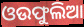
ଓଉଫୁଲିଆ